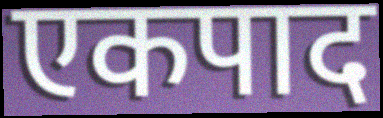
एकपाद